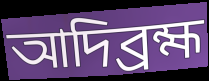
আদিব্রহ্ম